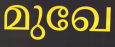
മുഖേ